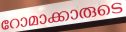
റോമാക്കാരുടെ